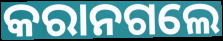
କରାନଗଲେ